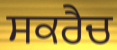
ਸਕਰੈਚ